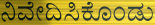
ನಿವೇದಿಸಿಕೊಂಡು